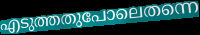
എടുത്തതുപോലെതന്നെ